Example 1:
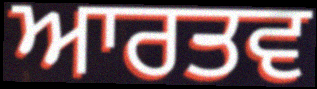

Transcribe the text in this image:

ਆਰਤਵ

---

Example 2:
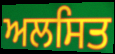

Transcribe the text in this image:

ਅਲਸਿਤ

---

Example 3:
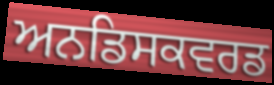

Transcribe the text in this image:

ਅਨਡਿਸਕਵਰਡ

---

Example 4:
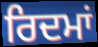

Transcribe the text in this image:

ਰਿਦਮਾਂ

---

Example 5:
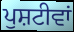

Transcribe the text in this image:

ਪੁਸ਼ਟੀਵਾਂ